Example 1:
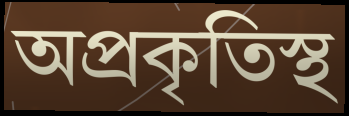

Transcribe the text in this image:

অপ্রকৃতিস্থ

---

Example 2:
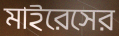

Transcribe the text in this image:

মাইরেসের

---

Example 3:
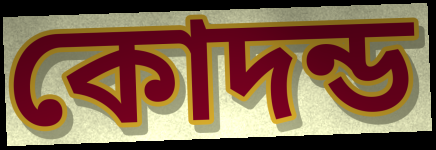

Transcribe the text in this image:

কোদন্ড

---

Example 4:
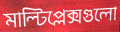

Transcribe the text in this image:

মাল্টিপ্লেক্সগুলো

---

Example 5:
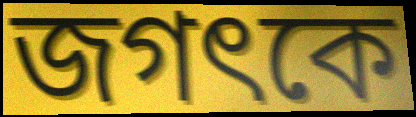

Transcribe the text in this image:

জগৎকে